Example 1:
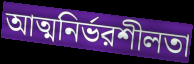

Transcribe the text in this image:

আত্মনির্ভরশীলতা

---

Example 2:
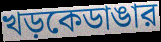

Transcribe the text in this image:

খড়কেডাঙার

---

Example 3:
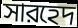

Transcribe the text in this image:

সারহেদ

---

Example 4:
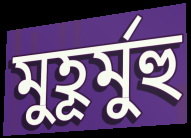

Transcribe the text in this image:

মুহূর্মুহু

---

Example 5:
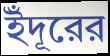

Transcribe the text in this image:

ইঁদূরের